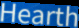
Hearth